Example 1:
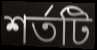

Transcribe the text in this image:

শর্তটি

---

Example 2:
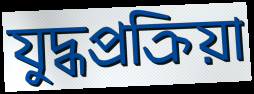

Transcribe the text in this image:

যুদ্ধপ্রক্রিয়া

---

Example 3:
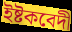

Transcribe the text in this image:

ইষ্টকবেদী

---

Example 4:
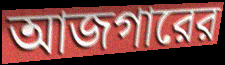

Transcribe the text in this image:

আজগারের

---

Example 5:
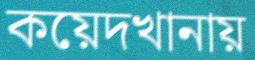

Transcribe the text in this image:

কয়েদখানায়